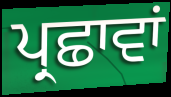
ਪ੍ਰਛਾਵਾਂ